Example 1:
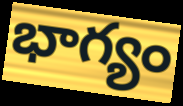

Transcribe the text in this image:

భాగ్యం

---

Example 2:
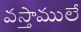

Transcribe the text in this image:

వస్తాములే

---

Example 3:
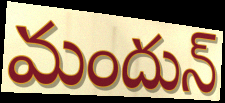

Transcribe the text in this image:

మందున్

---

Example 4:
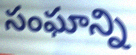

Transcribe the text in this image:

సంఘాన్ని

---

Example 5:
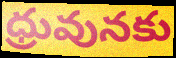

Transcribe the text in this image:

ధ్రువునకు